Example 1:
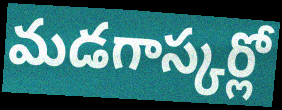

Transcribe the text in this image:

మడగాస్కర్లో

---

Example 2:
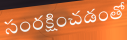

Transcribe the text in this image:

సంరక్షించడంతో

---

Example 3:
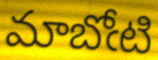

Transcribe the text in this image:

మాబోఁటి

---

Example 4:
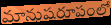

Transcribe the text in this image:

మానుషరూపంలో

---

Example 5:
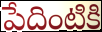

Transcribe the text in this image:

పేదింటికి